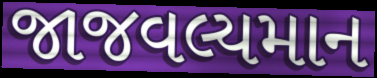
જાજવલ્યમાન